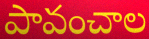
పావంచాల